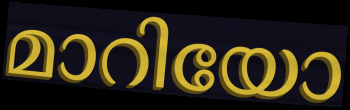
മാറിയോ